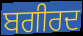
ਬਗੀਰਦ